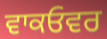
ਵਾਕਓਵਰ